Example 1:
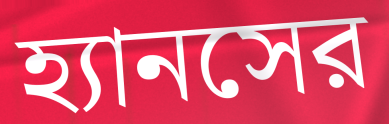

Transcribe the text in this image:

হ্যানসের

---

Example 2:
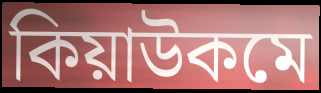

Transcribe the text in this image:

কিয়াউকমে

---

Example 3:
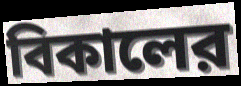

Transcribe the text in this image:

বিকালের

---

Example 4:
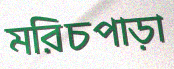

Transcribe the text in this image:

মরিচপাড়া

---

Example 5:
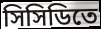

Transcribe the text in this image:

সিসিডিতে